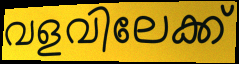
വളവിലേക്ക്